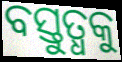
ବସ୍ତୁତ୍ଧକୁ